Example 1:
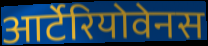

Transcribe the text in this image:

आर्टेरियोवेनस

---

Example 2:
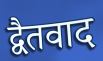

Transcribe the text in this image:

द्वैतवाद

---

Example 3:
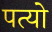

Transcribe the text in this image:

पत्यो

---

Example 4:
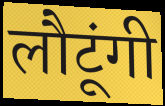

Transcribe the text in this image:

लौटूंगी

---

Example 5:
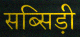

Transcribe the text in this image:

सब्सिड़ी